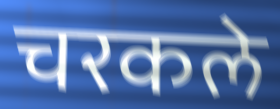
चरकले